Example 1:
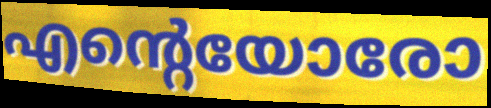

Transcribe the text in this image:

എന്റെയോരോ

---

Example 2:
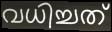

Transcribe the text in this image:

വധിച്ചത്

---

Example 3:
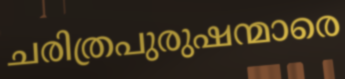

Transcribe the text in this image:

ചരിത്രപുരുഷന്മാരെ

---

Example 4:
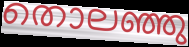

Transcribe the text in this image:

തൊലഞ്ഞു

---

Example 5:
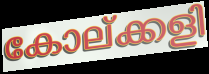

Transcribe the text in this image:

കോല്ക്കളി